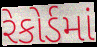
રેકોર્ડમાં